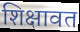
शिक्षावत